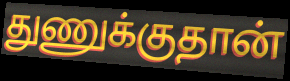
துணுக்குதான்